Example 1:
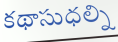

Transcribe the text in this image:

కథాసుధల్ని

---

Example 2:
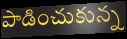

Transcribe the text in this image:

పాడించుకున్న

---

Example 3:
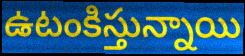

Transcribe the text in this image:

ఉటంకిస్తున్నాయి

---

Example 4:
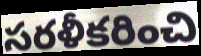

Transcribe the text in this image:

సరళీకరించి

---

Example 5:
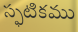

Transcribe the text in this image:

స్ఫటికము